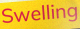
Swelling